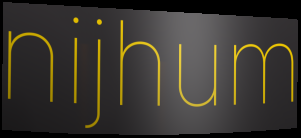
nijhum